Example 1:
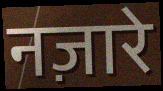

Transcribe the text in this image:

नज़ारे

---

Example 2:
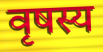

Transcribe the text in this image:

वृषस्य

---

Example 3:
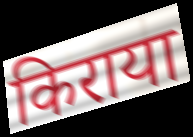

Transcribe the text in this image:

किराया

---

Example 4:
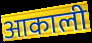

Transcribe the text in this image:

आकाली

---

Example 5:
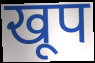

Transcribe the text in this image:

खूप